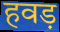
हवड़